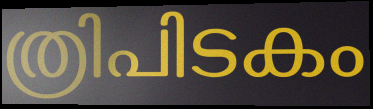
ത്രിപിടകം